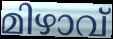
മിഴാവ്